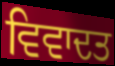
ਵਿਵਾਦਤ